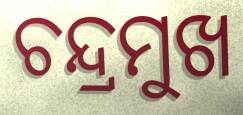
ଚନ୍ଦ୍ରମୁଖ